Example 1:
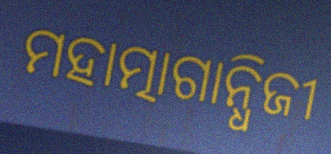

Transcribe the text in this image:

ମହାତ୍ମାଗାନ୍ଧିଜୀ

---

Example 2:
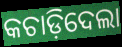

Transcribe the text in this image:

କଚାଡ଼ିଦେଲା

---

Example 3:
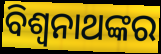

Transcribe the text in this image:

ବିଶ୍ୱନାଥଙ୍କର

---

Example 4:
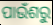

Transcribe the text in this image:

ପାଉଁଶରୁ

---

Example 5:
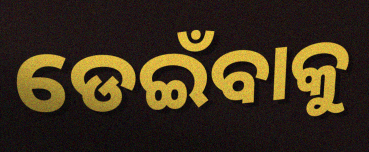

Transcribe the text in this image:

ଡେଇଁବାକୁ